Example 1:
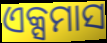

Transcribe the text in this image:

ଏକ୍ସମାସ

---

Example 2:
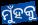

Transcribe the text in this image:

ମୁଁହକୁ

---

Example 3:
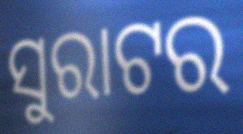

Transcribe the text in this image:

ସୁରାଟର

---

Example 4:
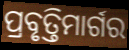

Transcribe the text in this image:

ପ୍ରବୃତ୍ତିମାର୍ଗର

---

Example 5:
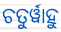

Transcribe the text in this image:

ଚତୁର୍ୱାହୁ